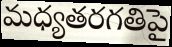
మధ్యతరగతిపై